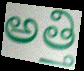
అత్తి